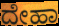
ದೇಹಾ